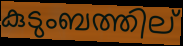
കുടുംബത്തില്